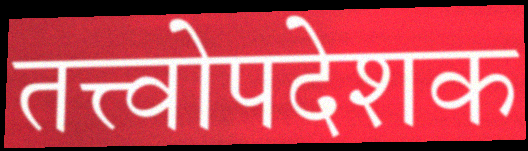
तत्त्वोपदेशक